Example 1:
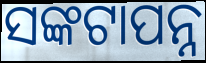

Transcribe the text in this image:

ସଙ୍କଟାପନ୍ନ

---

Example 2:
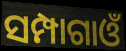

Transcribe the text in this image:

ସମ୍ପାଗାଓଁ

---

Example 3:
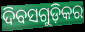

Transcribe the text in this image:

ଦିବସଗୁଡ଼ିକର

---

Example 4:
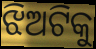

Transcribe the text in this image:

ଝିଅଟିକୁ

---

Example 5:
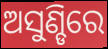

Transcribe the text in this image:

ଅସୁଣ୍ଡିରେ